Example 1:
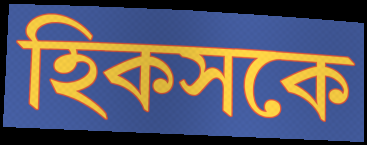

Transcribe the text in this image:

হিকসকে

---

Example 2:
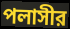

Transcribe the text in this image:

পলাসীর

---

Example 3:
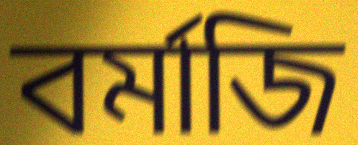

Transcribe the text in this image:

বর্মাজি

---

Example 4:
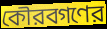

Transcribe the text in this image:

কৌরবগণের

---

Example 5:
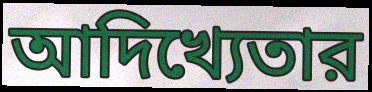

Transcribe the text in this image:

আদিখ্যেতার